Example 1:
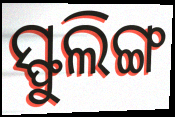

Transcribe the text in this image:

ସ୍ଫୁଲିଙ୍ଗ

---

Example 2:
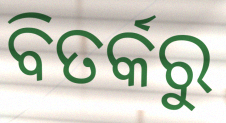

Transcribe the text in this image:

ବିତର୍କରୁ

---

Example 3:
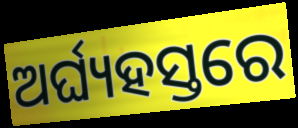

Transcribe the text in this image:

ଅର୍ଘ୍ୟହସ୍ତରେ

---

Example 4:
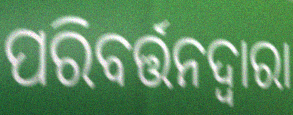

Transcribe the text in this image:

ପରିବର୍ତ୍ତନଦ୍ୱାରା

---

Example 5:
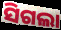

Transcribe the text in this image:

ସିଗଲା